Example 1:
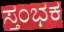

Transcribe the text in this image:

ಸ್ತಂಭಕ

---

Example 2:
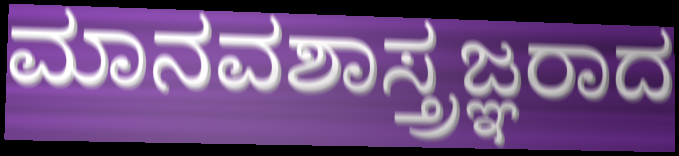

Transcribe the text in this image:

ಮಾನವಶಾಸ್ತ್ರಜ್ಞರಾದ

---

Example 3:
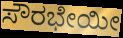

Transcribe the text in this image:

ಸೌರಭೇಯೀ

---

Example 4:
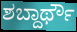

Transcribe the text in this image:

ಶಬ್ದಾರ್ಥೌ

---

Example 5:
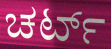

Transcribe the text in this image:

ಚರ್ಟ್